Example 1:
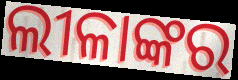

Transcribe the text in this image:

ଲୀଳାଙ୍କର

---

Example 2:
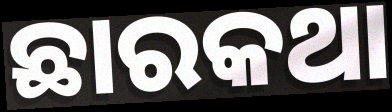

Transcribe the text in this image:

ଛାରକଥା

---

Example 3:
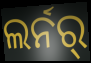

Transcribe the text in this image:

ଲର୍ନର୍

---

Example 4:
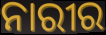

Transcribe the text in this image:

ନାରୀର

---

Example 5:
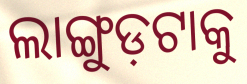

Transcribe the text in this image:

ଲାଙ୍ଗୁଡ଼ଟାକୁ